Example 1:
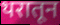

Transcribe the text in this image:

थरातून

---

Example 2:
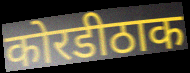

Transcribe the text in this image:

कोरडीठाक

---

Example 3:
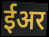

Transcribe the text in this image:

ईअर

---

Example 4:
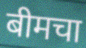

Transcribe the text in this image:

बीमचा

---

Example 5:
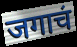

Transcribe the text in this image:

जगाचं